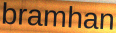
bramhan